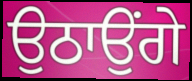
ਉਠਾਉਂਗੇ